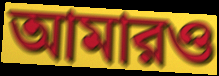
আমারও